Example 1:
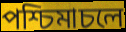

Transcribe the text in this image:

পশ্চিমাচলে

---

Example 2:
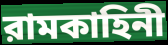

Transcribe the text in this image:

রামকাহিনী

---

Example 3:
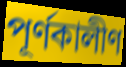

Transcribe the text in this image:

পূর্ণকালীণ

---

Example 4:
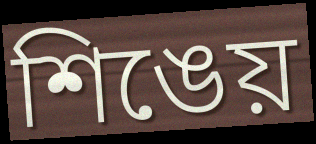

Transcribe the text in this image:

শিঙেয়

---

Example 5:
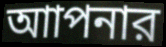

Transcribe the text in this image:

আাপনার